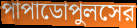
পাপাডোপুলসের